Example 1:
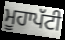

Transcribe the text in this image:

ਮੂਹਾਪੱਟੀ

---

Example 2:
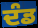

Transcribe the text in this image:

ਦੰਡ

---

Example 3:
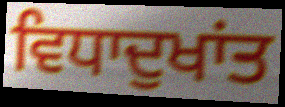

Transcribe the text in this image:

ਵਿਧਾਦੁਖਾਂਤ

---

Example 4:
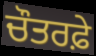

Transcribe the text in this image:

ਚੌਤਰਫ਼ੇ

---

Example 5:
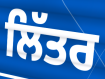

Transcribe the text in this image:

ਲਿੱਤਰ